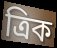
ত্রিক